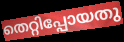
തെറ്റിപ്പോയതു